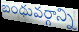
బంధువర్గాన్ని